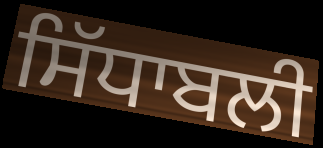
ਸਿੱਧਾਬਲੀ